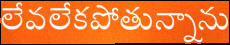
లేవలేకపోతున్నాను